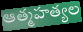
ఆత్మహత్యల